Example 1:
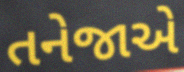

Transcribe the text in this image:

તનેજાએ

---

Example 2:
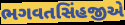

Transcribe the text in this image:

ભગવતસિંહજીએ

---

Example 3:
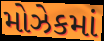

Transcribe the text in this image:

મોઝેકમાં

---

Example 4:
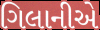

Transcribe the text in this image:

ગિલાનીએ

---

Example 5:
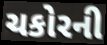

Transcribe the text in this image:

ચકોરની